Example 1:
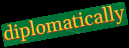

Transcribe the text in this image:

diplomatically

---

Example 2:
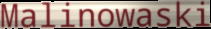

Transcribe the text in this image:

Malinowaski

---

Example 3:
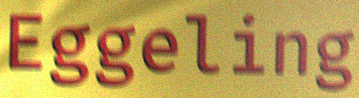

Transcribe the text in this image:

Eggeling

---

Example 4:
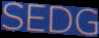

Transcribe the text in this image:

SEDG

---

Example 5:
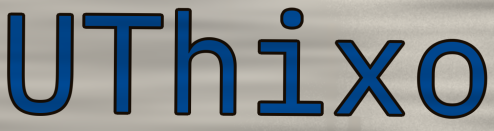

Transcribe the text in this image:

UThixo